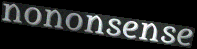
nononsense